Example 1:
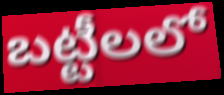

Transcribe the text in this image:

బట్టీలలో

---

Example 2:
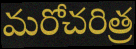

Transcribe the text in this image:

మరోచరిత్ర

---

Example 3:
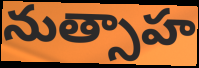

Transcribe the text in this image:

నుత్సాహ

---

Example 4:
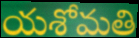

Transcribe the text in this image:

యశోమతి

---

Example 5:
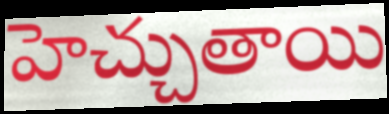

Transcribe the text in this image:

హెచ్చుతాయి